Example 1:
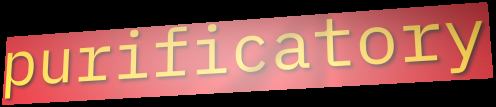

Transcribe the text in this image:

purificatory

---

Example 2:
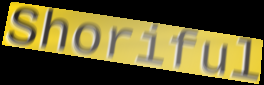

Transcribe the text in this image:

Shoriful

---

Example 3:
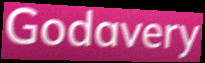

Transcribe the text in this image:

Godavery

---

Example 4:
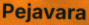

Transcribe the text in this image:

Pejavara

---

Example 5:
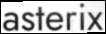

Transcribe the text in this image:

asterix